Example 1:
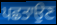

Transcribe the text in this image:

ਪਛਤਾਉਣ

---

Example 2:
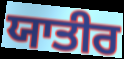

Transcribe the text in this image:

ਯਾਤੀਰ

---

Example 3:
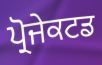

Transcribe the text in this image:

ਪ੍ਰੋਜੇਕਟਡ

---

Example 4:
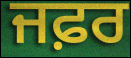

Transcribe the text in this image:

ਜਫ਼ਰ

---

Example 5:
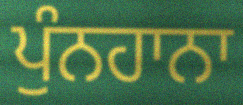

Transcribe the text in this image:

ਪੁੰਨਹਾਨਾ